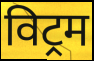
विट्रम